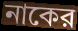
নাকের